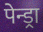
पेन्ड्रा